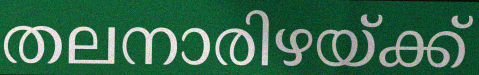
തലനാരിഴയ്ക്ക്